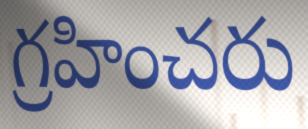
గ్రహించరు